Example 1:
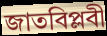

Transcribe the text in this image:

জাতবিপ্লবী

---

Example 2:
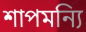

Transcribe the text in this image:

শাপমন্যি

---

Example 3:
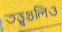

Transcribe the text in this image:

তত্ত্বগুলিও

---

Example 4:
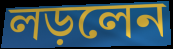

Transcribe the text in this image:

লড়লেন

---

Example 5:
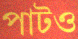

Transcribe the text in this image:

পাটও